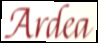
Ardea